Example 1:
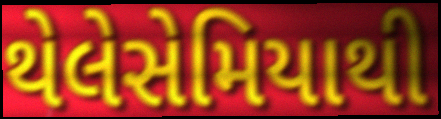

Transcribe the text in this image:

થેલેસેમિયાથી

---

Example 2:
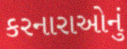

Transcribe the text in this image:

કરનારાઓનું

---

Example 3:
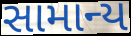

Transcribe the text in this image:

સામાન્ય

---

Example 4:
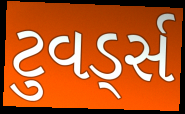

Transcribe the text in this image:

ટુવર્ડ્સ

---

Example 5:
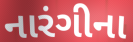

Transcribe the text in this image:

નારંગીના